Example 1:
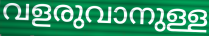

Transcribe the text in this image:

വളരുവാനുള്ള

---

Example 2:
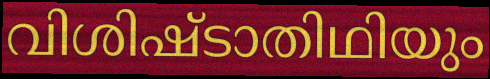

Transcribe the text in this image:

വിശിഷ്ടാതിഥിയും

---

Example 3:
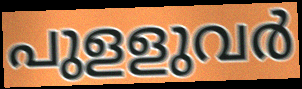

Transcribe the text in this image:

പുളളുവർ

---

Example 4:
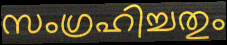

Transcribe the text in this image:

സംഗ്രഹിച്ചതും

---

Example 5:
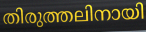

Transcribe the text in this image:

തിരുത്തലിനായി